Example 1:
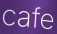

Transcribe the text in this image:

cafe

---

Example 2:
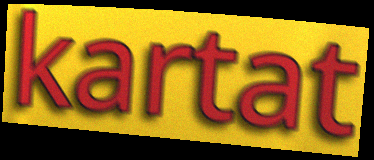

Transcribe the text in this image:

kartat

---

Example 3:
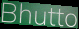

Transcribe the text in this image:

Bhutto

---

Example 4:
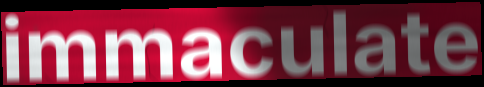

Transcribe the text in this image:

immaculate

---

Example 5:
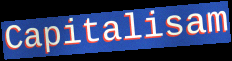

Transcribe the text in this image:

Capitalisam